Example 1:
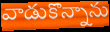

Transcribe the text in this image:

వాడుకొన్నాను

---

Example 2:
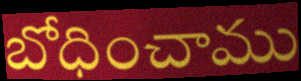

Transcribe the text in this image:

బోధించాము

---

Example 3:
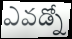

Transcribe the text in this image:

ఎవడ్నో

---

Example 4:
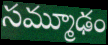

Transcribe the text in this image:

సమ్మూఢం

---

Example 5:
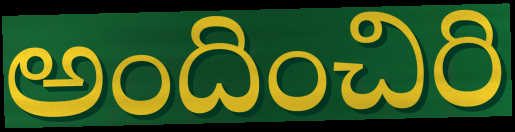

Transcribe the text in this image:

అందించిరి